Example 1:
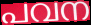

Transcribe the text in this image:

പവന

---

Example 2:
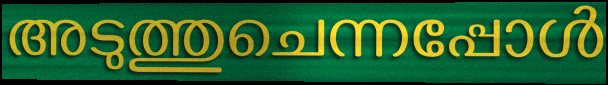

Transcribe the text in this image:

അടുത്തുചെന്നപ്പോൾ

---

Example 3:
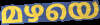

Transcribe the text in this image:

മഴയെ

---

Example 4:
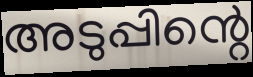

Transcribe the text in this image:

അടുപ്പിന്റെ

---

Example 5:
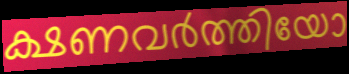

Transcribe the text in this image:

ക്ഷണവർത്തിയോ